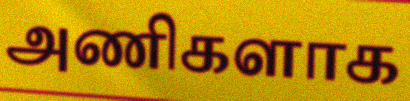
அணிகளாக